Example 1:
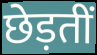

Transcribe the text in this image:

छेड़तीं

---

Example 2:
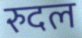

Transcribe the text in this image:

रुदल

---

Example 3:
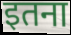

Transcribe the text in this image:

इतना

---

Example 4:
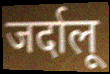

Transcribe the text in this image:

जर्दालू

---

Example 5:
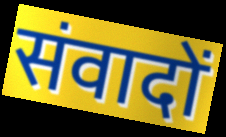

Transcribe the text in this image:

संवादों